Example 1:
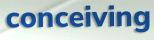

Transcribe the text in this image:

conceiving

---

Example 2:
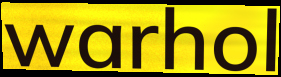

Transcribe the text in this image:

warhol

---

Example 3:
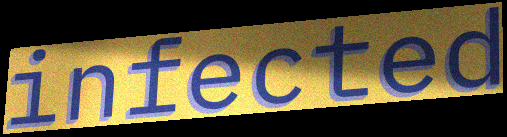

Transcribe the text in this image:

infected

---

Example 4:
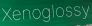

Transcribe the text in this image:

Xenoglossy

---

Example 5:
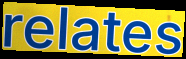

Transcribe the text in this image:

relates